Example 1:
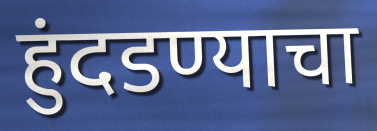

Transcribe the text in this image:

हुंदडण्याचा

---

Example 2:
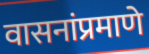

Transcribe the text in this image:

वासनांप्रमाणे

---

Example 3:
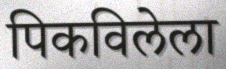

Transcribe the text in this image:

पिकविलेला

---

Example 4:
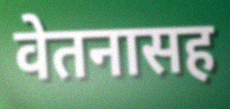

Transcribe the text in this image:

वेतनासह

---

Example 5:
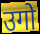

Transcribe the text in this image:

उगो